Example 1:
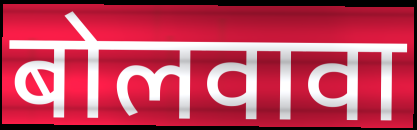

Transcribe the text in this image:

बोलवावा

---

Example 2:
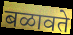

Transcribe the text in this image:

बळावते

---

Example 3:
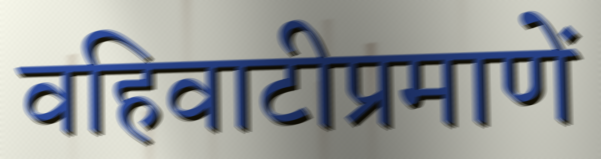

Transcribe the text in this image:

वहिवाटीप्रमाणें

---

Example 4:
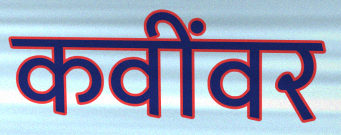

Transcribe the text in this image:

कवींवर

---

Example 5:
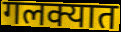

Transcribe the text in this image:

गलक्यात